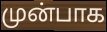
முன்பாக